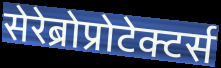
सेरेब्रोप्रोटेक्टर्स